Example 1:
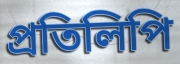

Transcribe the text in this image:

প্ৰতিলিপি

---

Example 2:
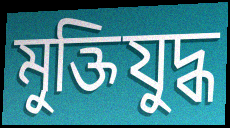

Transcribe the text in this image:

মুক্তিযুদ্ধ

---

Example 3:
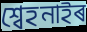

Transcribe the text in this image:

শ্বেহনাইৰ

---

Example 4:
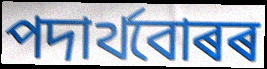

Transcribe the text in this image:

পদাৰ্থবোৰৰ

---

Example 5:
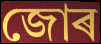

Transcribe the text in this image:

জোৰ